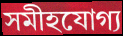
সমীহযোগ্য